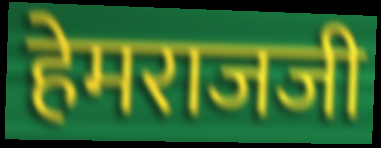
हेमराजजी